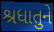
શ્રધાતુને